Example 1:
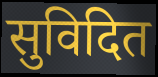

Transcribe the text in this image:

सुविदित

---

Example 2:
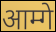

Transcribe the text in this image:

आम्गे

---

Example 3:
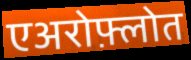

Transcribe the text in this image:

एअरोफ़्लोत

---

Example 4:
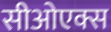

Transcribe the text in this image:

सीओएक्स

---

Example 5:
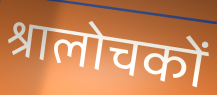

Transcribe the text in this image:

श्रालोचकों